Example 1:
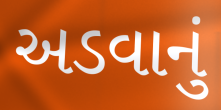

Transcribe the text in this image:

અડવાનું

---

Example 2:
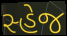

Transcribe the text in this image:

સ્હેજ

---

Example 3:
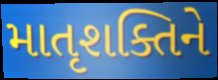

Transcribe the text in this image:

માતૃશક્તિને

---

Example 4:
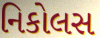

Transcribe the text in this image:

નિકોલસ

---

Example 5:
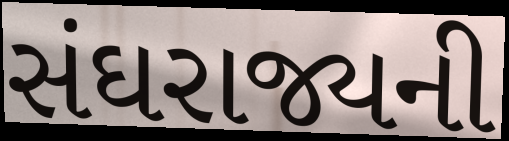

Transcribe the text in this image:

સંઘરાજ્યની